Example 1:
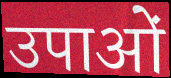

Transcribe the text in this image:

उपाओं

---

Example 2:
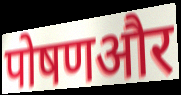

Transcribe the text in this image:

पोषणऔर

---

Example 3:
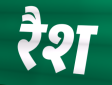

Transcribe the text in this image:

रैश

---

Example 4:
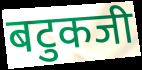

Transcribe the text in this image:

बटुकजी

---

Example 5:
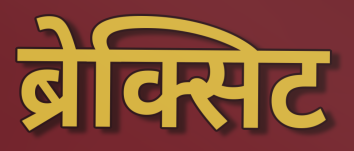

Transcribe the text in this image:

ब्रेक्सिट